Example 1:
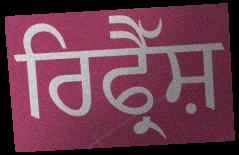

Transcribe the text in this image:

ਰਿਫ੍ਰੈੱਸ਼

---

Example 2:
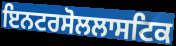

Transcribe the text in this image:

ਇਨਟਰਸੋਲਲਾਸਟਿਕ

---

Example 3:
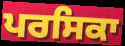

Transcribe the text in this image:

ਪਰਸਿਕਾ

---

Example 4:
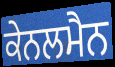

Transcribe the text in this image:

ਕੇਨਲਮੈਨ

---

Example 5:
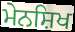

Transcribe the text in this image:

ਮੇਨਸ਼ਿਖ